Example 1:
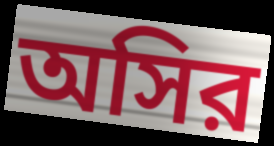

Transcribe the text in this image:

অসির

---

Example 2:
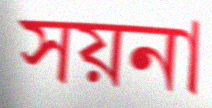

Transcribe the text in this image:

সয়না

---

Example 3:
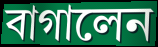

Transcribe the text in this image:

বাগালেন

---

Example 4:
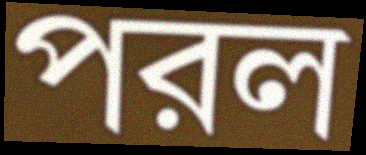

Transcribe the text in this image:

পরল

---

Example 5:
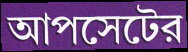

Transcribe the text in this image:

আপসেটের